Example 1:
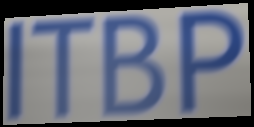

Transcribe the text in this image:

ITBP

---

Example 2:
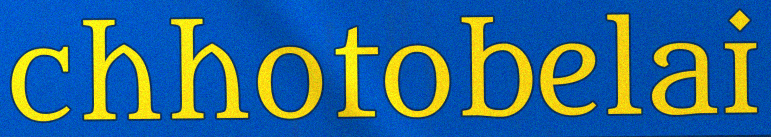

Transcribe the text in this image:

chhotobelai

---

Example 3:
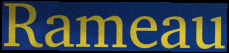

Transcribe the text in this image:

Rameau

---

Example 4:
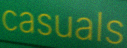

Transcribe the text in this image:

casuals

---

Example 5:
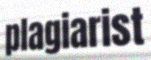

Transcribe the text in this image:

plagiarist